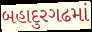
બહાદુરગઢમાં